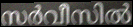
സർവീസിൽ